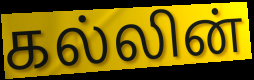
கல்லின்